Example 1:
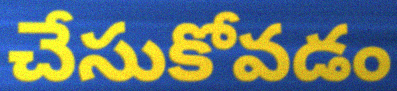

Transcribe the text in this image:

చేసుకోవడం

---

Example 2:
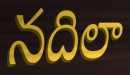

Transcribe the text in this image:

నదిలా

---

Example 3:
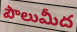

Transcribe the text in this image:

పౌలుమీద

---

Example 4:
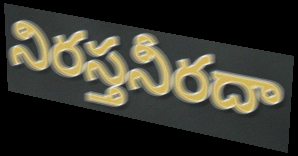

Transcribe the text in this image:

నిరస్తనీరదా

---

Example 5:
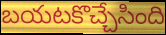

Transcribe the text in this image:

బయటకొచ్చేసింది